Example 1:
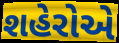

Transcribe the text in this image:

શહેરોએ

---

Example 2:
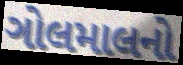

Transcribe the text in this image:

ગોલમાલનો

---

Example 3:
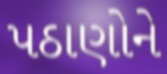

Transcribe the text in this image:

પઠાણોને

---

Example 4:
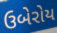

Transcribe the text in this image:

ઉબેરોય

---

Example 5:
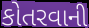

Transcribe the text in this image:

કોતરવાની